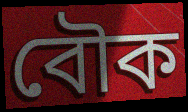
বৌক